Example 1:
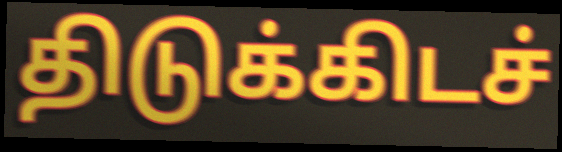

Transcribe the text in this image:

திடுக்கிடச்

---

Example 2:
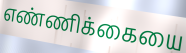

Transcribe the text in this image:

எண்ணிக்கையை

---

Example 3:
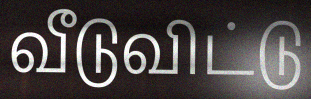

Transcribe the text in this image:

வீடுவிட்டு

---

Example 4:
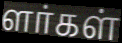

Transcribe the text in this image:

ளர்கள்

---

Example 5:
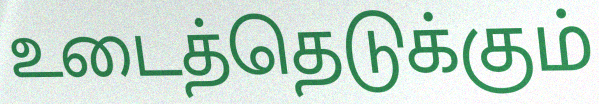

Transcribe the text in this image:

உடைத்தெடுக்கும்